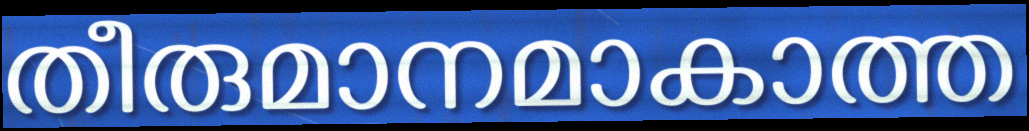
തീരുമാനമാകാത്ത